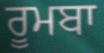
ਰੂਮਬਾ